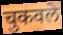
चुकवले